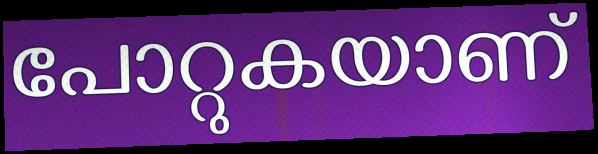
പോറ്റുകയാണ്